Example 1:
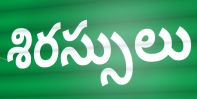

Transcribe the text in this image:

శిరస్సులు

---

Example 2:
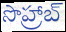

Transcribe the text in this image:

సొహ్రాబ్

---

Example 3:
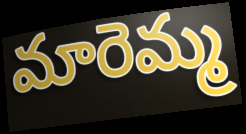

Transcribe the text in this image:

మారెమ్మ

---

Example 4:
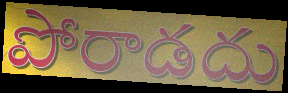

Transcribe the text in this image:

పోరాడదు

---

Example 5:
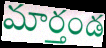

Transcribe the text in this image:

మార్తండ